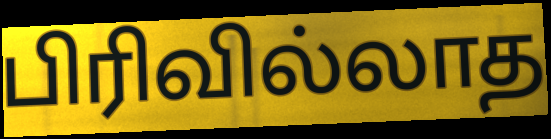
பிரிவில்லாத